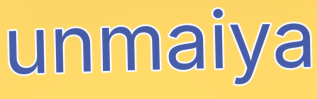
unmaiya